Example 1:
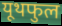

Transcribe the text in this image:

यूथफुल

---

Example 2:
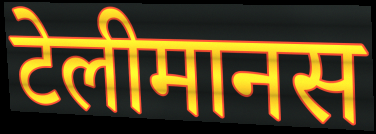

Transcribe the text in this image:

टेलीमानस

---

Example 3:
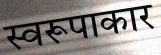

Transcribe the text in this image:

स्वरूपाकार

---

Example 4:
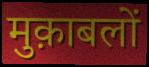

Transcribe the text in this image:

मुक़ाबलों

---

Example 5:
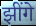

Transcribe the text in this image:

झींगे